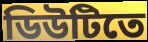
ডিউটিতে